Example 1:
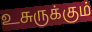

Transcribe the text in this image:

உசுருக்கும்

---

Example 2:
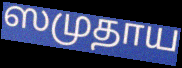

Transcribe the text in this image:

ஸமுதாய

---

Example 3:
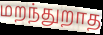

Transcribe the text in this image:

மறந்துறாத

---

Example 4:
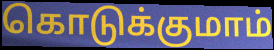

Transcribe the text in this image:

கொடுக்குமாம்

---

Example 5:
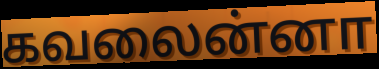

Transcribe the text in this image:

கவலைன்னா